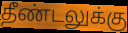
தீண்டலுக்கு